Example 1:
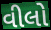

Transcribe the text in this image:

વીલો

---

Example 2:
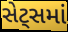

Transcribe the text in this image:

સેટ્સમાં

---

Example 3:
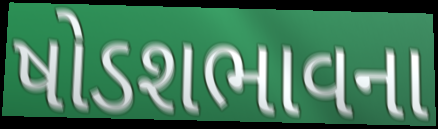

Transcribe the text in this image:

ષોડશભાવના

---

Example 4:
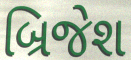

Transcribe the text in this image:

બ્રિજેશ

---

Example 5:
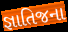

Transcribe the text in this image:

જ્ઞાતિજના